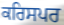
ਕਰਿਸਪਰ